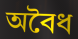
অবৈধ